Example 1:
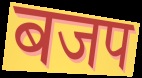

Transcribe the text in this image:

बजप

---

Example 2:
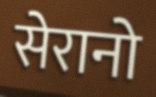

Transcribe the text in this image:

सेरानो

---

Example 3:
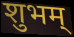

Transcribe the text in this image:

शुभम्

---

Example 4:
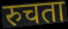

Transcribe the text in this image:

रुचता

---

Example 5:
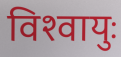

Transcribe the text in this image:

विश्वायुः